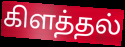
கிளத்தல்